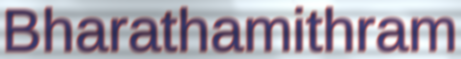
Bharathamithram